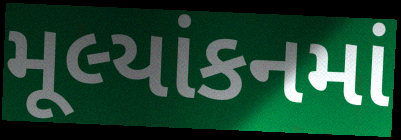
મૂલ્યાંકનમાં